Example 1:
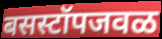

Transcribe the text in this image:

बसस्टॉपजवळ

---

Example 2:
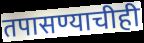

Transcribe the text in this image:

तपासण्याचीही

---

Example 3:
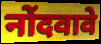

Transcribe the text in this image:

नोंदवावे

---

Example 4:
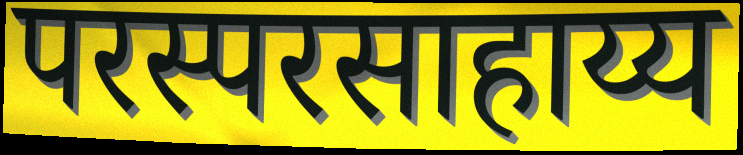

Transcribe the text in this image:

परस्परसाहाय्य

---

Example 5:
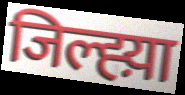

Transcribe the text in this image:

जिल्ह्य़ा